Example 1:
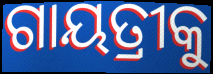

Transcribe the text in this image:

ଗାୟତ୍ରୀକୁ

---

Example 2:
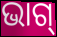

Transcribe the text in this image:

ଭାଗ୍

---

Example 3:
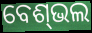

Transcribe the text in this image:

ବେଶ୍‌ଭଲ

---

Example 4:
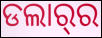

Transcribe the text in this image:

ଡଲାର୍‌ର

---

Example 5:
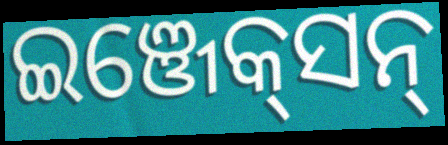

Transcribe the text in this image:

ଇଞ୍ଜେକ୍‍ସନ୍